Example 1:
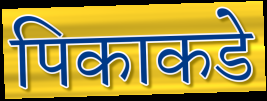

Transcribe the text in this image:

पिकाकडे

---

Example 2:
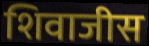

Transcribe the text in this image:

शिवाजीस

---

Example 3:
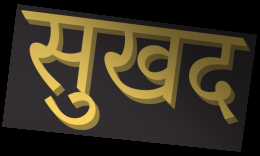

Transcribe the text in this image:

सुखद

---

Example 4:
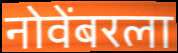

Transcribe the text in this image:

नोवेंबरला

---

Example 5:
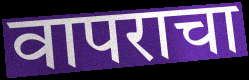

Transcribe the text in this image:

वापराचा